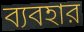
ব্যবহার